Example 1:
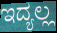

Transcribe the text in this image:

ಇದ್ಯಲ್ಲ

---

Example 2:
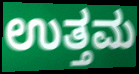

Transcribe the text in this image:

ಉತ್ತಮ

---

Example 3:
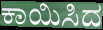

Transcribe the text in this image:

ಕಾಯಿಸಿದ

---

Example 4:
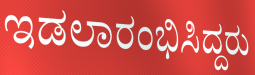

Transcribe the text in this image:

ಇಡಲಾರಂಭಿಸಿದ್ದರು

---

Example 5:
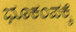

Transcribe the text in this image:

ಭೂಕಂಪಕ್ಕೆ